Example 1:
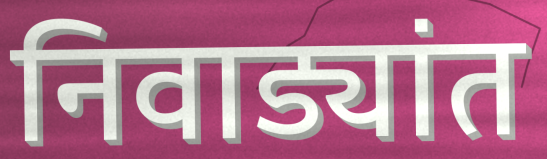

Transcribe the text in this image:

निवाड्यांत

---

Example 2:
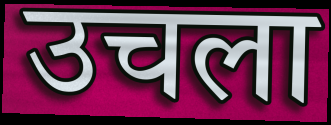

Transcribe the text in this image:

उचला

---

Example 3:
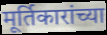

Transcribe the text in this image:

मूर्तिकारांच्या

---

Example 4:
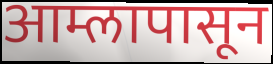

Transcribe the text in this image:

आम्लापासून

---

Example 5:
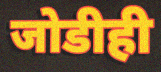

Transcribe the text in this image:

जोडीही